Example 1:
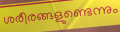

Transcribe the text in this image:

ശരീരങ്ങളുണ്ടെന്നും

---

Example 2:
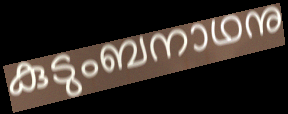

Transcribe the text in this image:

കുടുംബനാഥനു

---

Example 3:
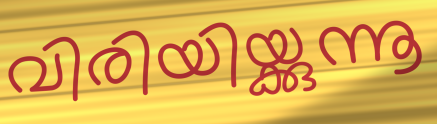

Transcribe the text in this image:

വിരിയിയ്ക്കുന്നൂ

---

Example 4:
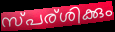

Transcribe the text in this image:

സ്പര്ശിക്കും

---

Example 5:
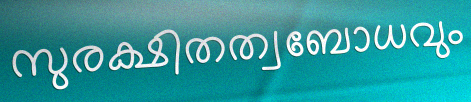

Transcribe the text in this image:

സുരക്ഷിതത്വബോധവും